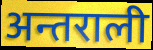
अन्तराली